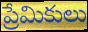
ప్రేమికులు